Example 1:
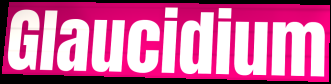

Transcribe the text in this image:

Glaucidium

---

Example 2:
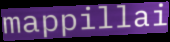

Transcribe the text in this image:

mappillai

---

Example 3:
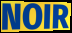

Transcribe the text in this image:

NOIR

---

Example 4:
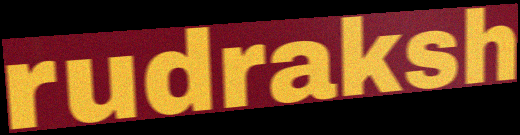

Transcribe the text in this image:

rudraksh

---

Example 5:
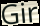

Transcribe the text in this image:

Gir